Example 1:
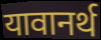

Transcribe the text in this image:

यावानर्थ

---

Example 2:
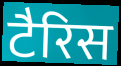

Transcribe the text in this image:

टैरिस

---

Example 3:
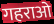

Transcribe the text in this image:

गहराओ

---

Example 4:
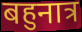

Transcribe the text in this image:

बहुनात्र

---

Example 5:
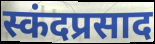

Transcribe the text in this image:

स्कंदप्रसाद